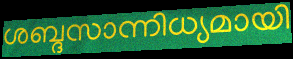
ശബ്ദസാന്നിധ്യമായി